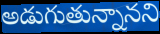
అడుగుతున్నానని